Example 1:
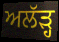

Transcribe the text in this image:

ਅਲੱੜ੍ਹ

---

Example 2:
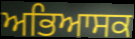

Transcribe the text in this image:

ਅਭਿਆਸਕ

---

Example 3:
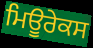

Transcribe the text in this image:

ਮਿਊਰੇਕਸ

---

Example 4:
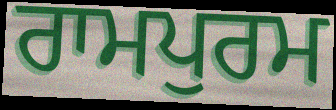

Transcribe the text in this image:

ਰਾਮਪੁਰਮ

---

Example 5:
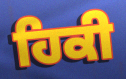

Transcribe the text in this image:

ਹਿਕੀ